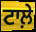
ਟਾਲ਼ੇ